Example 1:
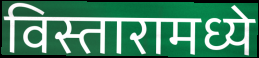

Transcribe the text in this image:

विस्तारामध्ये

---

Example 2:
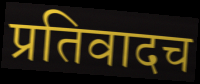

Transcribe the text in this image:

प्रतिवादच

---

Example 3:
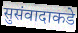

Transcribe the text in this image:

सुसंवादाकडे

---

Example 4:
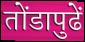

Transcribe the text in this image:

तोंडापुढें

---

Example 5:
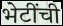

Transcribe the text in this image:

भेटींची